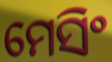
ମେସିଂ